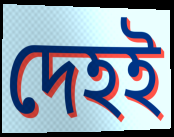
দেহই